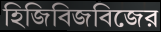
হিজিবিজবিজের